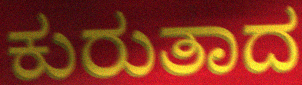
ಕುರುತಾದ